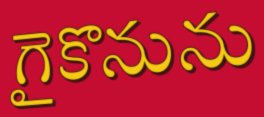
గైకొనును